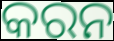
କରନ